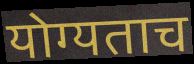
योग्यताच